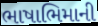
ભાષાભિમાની